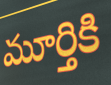
మూర్తికి